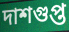
দাশগুপ্ত